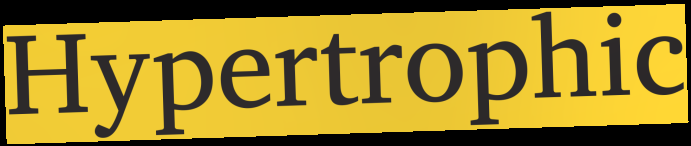
Hypertrophic